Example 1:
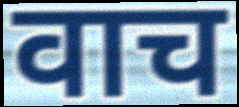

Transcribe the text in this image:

वाच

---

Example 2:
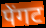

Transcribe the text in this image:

पेंगट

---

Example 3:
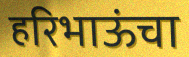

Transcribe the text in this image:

हरिभाऊंचा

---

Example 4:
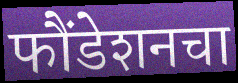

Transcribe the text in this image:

फौंडेशनचा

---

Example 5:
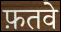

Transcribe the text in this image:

फ़तवे